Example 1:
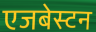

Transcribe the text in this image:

एजबेस्टन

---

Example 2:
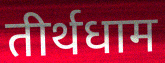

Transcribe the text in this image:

तीर्थधाम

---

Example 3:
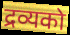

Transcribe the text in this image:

द्रव्यको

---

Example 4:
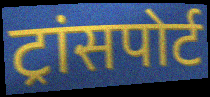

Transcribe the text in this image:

ट्रांसपोर्ट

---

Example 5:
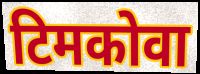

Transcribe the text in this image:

टिमकोवा